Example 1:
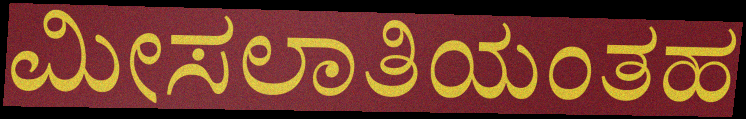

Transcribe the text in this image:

ಮೀಸಲಾತಿಯಂತಹ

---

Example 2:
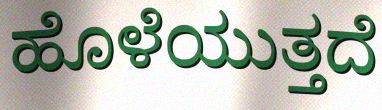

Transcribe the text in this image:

ಹೊಳೆಯುತ್ತದೆ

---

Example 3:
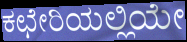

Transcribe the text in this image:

ಕಛೇರಿಯಲ್ಲಿಯೇ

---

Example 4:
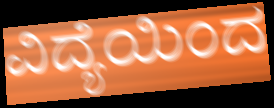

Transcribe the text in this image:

ವಿದ್ಯೆಯಿಂದ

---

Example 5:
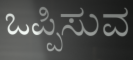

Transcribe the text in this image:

ಒಪ್ಪಿಸುವ